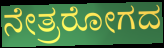
ನೇತ್ರರೋಗದ